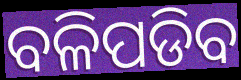
ବଳିପଡିବ